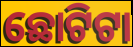
ଛୋଟିଟା